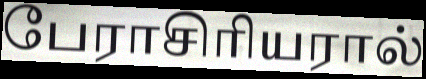
பேராசிரியரால்